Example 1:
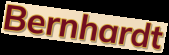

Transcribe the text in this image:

Bernhardt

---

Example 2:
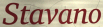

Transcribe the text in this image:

Stavano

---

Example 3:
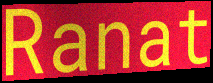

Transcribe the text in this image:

Ranat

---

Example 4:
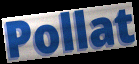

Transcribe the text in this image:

Pollat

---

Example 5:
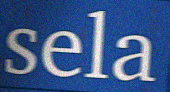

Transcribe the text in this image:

sela